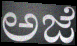
ಅಜೆ